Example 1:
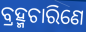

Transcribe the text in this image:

ବ୍ରହ୍ମଚାରିଣେ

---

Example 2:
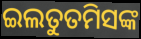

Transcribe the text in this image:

ଇଲତୁତମିସଙ୍କ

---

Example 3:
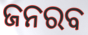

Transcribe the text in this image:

ଜନରବ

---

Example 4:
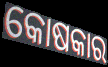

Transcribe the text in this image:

କୋଷକାର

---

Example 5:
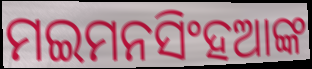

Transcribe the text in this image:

ମଇମନସିଂହଆଙ୍କ